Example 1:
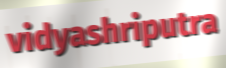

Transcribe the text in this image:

vidyashriputra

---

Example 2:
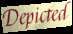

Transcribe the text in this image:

Depicted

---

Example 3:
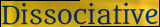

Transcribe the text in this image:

Dissociative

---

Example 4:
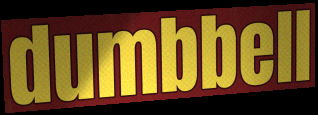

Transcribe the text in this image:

dumbbell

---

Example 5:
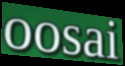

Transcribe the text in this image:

oosai